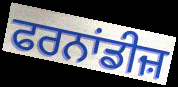
ਫਰਨਾਂਡੀਜ਼